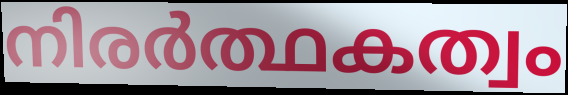
നിരർത്ഥകത്വം